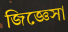
জিজ্ঞেসা